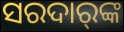
ସରଦାର୍‍ଙ୍କ